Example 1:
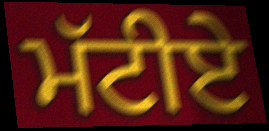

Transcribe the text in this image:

ਮੱਟੀਏ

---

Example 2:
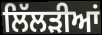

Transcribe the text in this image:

ਲਿੱਲੜੀਆਂ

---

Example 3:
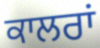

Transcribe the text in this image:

ਕਾਲਰਾਂ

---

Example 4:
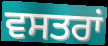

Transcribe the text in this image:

ਵਸਤਰਾਂ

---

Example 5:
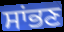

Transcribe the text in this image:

ਸਾਂਭਣ